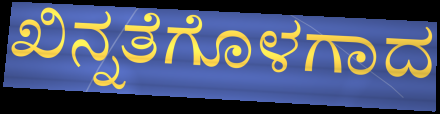
ಖಿನ್ನತೆಗೊಳಗಾದ